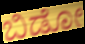
ಬಿಡೋ